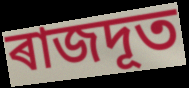
ৰাজদূত